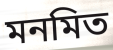
মনমিত